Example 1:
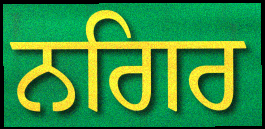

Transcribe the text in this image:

ਨਗਿਰ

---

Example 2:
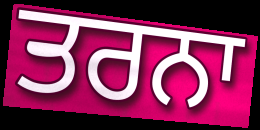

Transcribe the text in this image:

ਤਰਨਾ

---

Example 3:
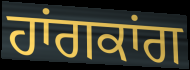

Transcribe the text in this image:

ਹਾਂਗਕਾਂਗ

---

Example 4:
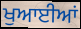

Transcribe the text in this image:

ਖੁਆਈਆਂ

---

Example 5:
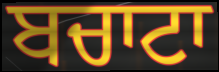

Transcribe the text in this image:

ਬਚਾਟਾ